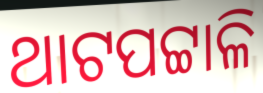
ଥାଟପଟ୍ଟାଳି